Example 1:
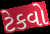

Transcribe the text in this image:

ટેકવો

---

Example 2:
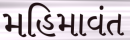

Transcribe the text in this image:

મહિમાવંત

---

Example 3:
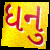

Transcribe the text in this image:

ધનુ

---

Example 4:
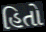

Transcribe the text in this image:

હિતો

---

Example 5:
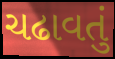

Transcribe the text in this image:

ચઢાવતું